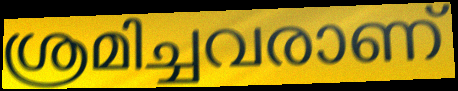
ശ്രമിച്ചവരാണ്